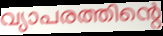
വ്യാപരത്തിന്റെ